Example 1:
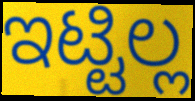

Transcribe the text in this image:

ಇಟ್ಟಿಲ್ಲ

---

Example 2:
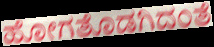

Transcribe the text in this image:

ಹೋಗತೊಡಗಿದಂತೆ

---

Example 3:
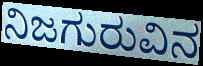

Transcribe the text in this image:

ನಿಜಗುರುವಿನ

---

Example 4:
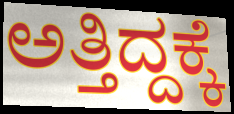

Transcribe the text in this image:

ಅತ್ತಿದ್ದಕ್ಕೆ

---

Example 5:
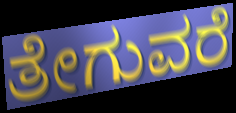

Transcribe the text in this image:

ತೇಗುವರೆ